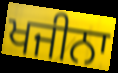
ਖਜੀਨਾ